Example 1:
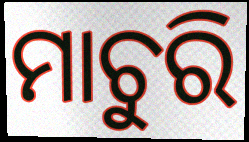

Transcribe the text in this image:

ମାଚୁରି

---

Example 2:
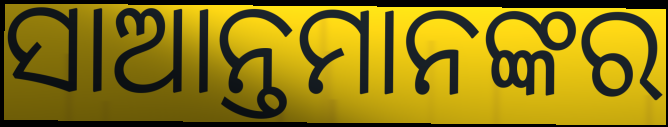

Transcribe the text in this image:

ସାଆନ୍ତମାନଙ୍କର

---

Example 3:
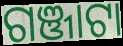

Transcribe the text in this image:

ଗଞ୍ଜାଟା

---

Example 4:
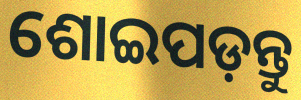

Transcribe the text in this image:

ଶୋଇପଡ଼ନ୍ତୁ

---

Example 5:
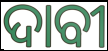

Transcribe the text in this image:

ଦାବୀ